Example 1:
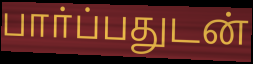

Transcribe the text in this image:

பார்ப்பதுடன்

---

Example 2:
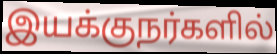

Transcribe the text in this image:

இயக்குநர்களில்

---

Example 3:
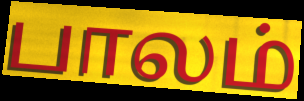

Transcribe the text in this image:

பாலம்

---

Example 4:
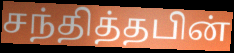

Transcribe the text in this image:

சந்தித்தபின்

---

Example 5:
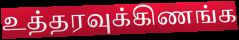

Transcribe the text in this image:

உத்தரவுக்கிணங்க